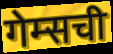
गेम्सची